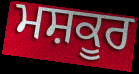
ਮਸ਼ਕੂਰ